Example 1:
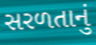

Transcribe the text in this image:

સરળતાનું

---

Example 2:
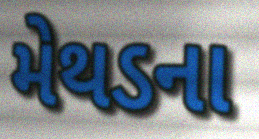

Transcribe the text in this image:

મેથડના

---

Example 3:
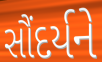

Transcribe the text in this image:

સૌંદર્યને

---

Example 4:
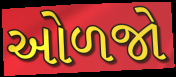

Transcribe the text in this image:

ઓળજો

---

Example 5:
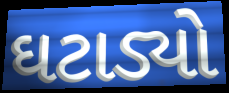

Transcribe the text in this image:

ઘટાડ્યો